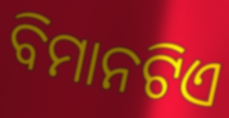
ବିମାନଟିଏ